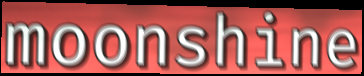
moonshine